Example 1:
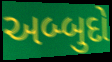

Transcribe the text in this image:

અબ્બુદો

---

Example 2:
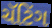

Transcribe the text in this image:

ચૅટિંગ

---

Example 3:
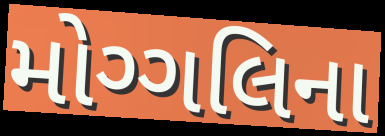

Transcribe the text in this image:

મોગ્ગલિના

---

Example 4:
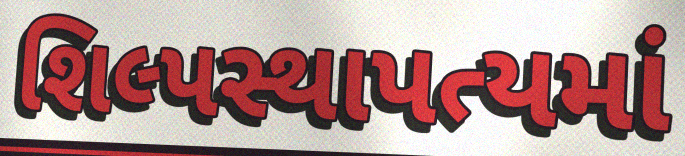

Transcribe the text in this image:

શિલ્પસ્થાપત્યમાં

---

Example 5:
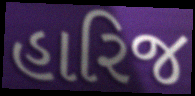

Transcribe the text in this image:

હારિજ